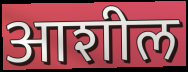
आशील